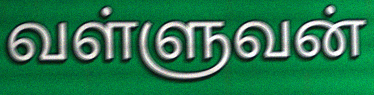
வள்ளுவன்